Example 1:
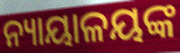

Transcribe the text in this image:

ନ୍ୟାୟାଳୟଙ୍କ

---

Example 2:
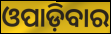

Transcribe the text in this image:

ଓପାଡ଼ିବାର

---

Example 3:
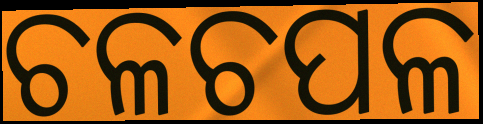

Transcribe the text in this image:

ଚଳଚପଳ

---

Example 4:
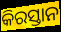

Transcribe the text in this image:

କିରସ୍ତାନ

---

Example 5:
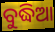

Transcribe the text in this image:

ବୁଦ୍ଧିଆ